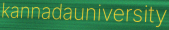
kannadauniversity